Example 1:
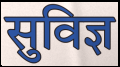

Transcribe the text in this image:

सुविज्ञ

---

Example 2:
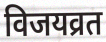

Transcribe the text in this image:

विजयव्रत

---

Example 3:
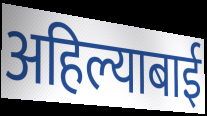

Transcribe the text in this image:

अहिल्याबाई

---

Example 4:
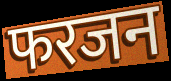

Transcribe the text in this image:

फरजन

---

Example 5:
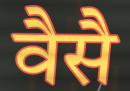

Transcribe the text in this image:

वैसै